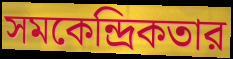
সমকেন্দ্রিকতার